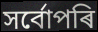
সৰ্বোপৰি